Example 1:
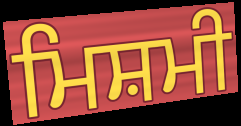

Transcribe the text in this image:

ਮਿਸ਼ਮੀ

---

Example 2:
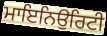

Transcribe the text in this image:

ਮਾਇਨਿਉਰਿਟੀ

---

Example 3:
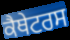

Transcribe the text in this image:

ਕੈਥੇਟਰਸ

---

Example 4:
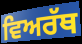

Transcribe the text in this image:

ਵਿਅਰੱਥ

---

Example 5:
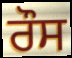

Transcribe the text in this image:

ਰੌਸ